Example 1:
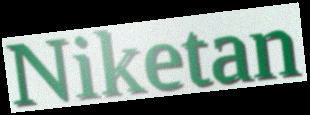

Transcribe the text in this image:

Niketan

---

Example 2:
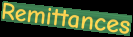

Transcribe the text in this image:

Remittances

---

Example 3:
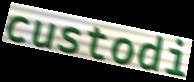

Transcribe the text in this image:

custodi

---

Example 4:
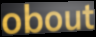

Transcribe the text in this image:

obout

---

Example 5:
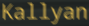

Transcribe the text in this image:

Kallyan